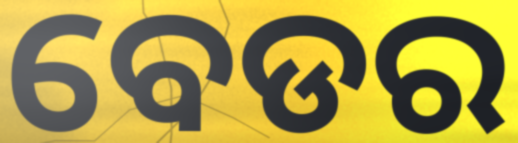
ବେଡର